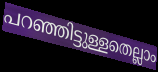
പറഞ്ഞിട്ടുള്ളതെല്ലാം